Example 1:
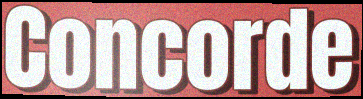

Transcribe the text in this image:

Concorde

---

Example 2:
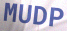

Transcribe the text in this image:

MUDP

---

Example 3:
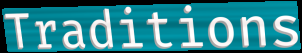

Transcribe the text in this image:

Traditions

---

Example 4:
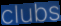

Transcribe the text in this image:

clubs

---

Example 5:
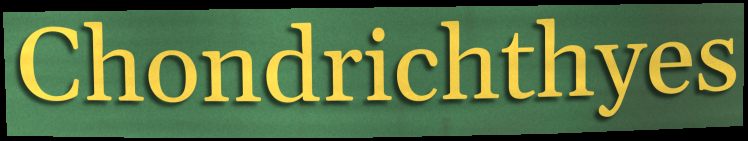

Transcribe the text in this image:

Chondrichthyes